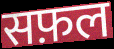
सफ़ल